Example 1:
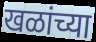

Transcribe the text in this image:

खळांच्या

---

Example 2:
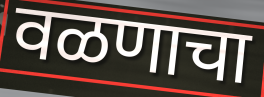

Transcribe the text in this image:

वळणाचा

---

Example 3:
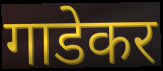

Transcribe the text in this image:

गाडेकर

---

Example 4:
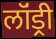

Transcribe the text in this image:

लॉंड्री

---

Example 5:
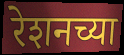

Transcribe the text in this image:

रेशनच्या